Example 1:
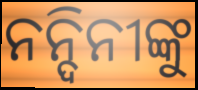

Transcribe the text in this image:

ନନ୍ଦିନୀଙ୍କୁ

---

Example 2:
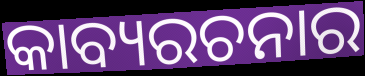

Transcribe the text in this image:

କାବ୍ୟରଚନାର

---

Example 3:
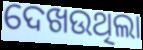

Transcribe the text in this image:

ଦେଖଉଥିଲା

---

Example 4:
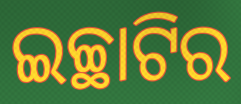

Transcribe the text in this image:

ଇଚ୍ଛାଟିର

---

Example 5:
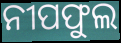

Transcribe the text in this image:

ନୀପଫୁଲ